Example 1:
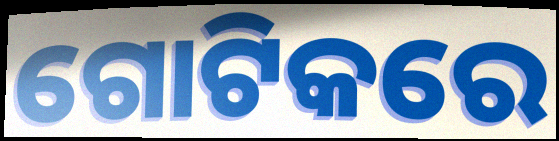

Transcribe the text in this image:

ଗୋଟିକରେ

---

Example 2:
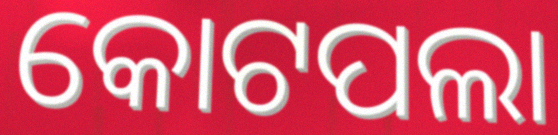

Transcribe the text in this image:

କୋଟପଲା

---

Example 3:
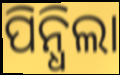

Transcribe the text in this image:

ପିନ୍ଧିଲା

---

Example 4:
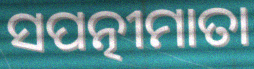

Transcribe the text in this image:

ସପତ୍ନୀମାତା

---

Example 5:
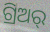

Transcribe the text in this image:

ଗ୍ରିଅର୍